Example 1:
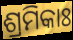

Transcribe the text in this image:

ଶ୍ରମିକାଃ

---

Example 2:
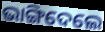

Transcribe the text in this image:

ଭାଙ୍ଗିଦେଲେ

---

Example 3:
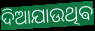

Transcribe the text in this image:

ଦିଆଯାଉଥିଵ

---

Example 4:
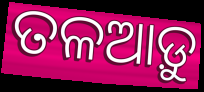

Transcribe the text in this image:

ତଳଆଡ଼ୁ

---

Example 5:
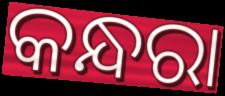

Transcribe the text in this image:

କନ୍ଧରା